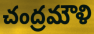
చంద్రమౌళి